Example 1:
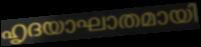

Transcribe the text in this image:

ഹൃദയാഘാതമായി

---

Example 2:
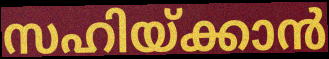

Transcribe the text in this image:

സഹിയ്ക്കാൻ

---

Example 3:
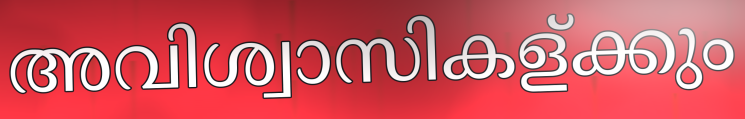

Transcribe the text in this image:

അവിശ്വാസികള്ക്കും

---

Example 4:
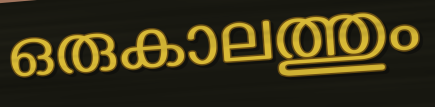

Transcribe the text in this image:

ഒരുകാലത്തും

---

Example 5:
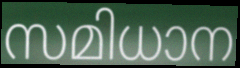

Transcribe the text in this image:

സമിധാന